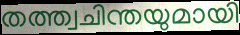
തത്ത്വചിന്തയുമായി